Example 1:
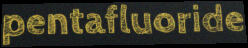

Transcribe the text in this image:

pentafluoride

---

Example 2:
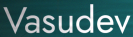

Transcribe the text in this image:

Vasudev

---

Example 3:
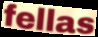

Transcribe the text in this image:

fellas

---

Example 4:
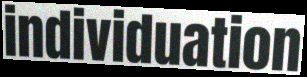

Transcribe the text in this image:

individuation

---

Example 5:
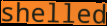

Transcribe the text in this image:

shelled